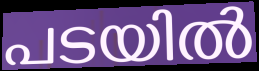
പടയിൽ